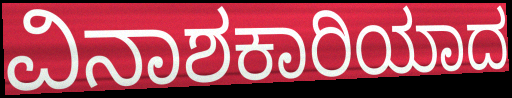
ವಿನಾಶಕಾರಿಯಾದ